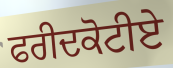
ਫਰੀਦਕੋਟੀਏ